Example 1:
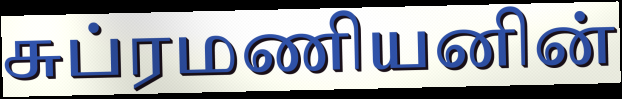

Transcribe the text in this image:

சுப்ரமணியனின்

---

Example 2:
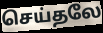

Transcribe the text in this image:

செய்தலே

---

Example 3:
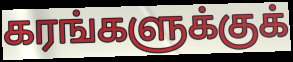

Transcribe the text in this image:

கரங்களுக்குக்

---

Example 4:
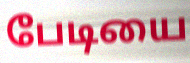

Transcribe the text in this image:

பேடியை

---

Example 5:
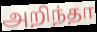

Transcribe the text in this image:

அறிந்தா